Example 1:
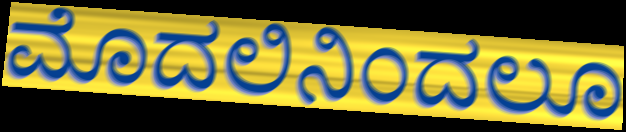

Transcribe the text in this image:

ಮೊದಲಿನಿಂದಲೂ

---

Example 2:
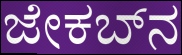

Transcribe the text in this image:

ಜೇಕಬ್‌ನ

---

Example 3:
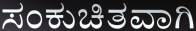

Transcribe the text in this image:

ಸಂಕುಚಿತವಾಗಿ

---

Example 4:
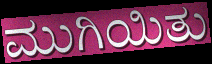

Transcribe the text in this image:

ಮುಗಿಯಿತು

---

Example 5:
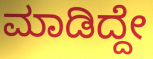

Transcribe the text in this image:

ಮಾಡಿದ್ದೇ